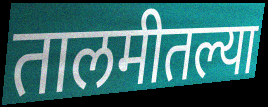
तालमीतल्या